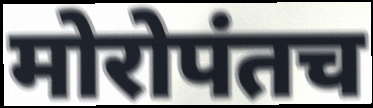
मोरोपंतच